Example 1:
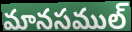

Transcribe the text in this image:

మానసముల్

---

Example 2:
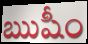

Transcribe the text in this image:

ఋషీం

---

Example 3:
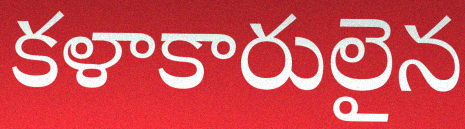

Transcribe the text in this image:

కళాకారులైన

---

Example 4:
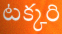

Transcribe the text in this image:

టక్కరి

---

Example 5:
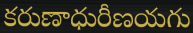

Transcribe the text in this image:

కరుణాధురీణయగు